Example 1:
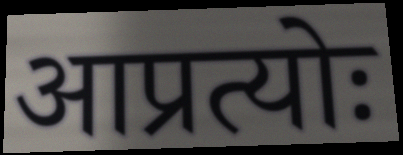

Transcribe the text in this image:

आप्रत्योः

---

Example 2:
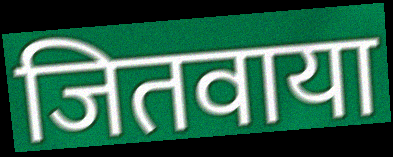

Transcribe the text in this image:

जितवाया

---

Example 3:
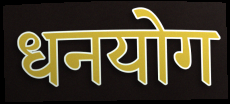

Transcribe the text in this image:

धनयोग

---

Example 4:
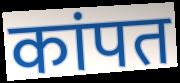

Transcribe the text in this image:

कांपत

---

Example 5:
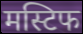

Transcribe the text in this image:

मस्टिफ